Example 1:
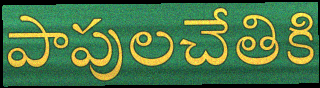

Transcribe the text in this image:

పాపులచేతికి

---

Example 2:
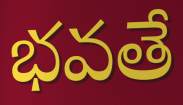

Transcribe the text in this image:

భవతే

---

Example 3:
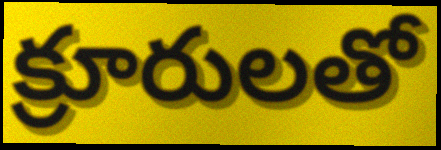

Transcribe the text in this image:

క్రూరులతో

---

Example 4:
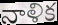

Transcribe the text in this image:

నాళిక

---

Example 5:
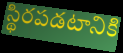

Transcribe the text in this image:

స్థిరపడటానికి